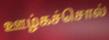
ஊழ்கச்சொல்